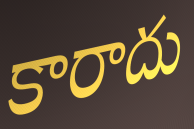
కారాదు